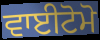
ਵਾਈਟੋਮੋ